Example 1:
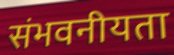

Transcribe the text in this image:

संभवनीयता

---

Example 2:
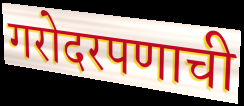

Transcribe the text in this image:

गरोदरपणाची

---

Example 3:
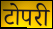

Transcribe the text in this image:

टोपरी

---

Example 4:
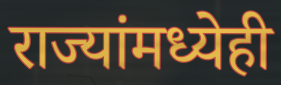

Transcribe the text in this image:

राज्यांमध्येही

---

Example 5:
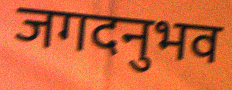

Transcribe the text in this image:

जगदनुभव